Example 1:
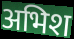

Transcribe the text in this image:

अभिश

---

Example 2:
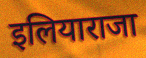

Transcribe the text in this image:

इलियाराजा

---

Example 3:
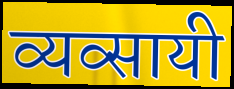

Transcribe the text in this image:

व्यव्सायी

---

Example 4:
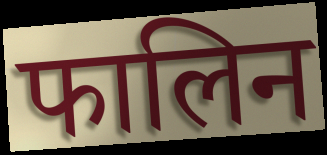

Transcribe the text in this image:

फालिन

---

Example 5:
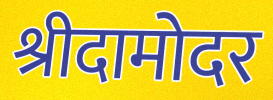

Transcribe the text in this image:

श्रीदामोदर